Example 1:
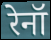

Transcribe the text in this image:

रेनॉ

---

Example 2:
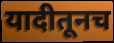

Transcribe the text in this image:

यादीतूनच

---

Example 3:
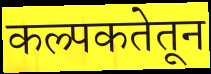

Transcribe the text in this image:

कल्पकतेतून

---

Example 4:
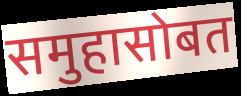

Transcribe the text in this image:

समुहासोबत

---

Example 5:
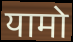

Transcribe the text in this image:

यामो